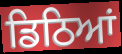
ਡਿਠਿਆਂ